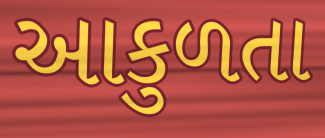
આકુળતા